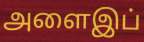
அளைஇப்